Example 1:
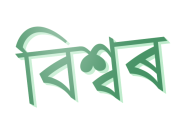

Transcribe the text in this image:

বিশ্বৰ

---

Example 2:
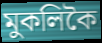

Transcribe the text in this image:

মুকলিকৈ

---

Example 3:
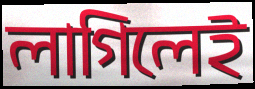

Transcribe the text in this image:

লাগিলেই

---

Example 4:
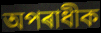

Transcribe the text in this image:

অপৰাধীক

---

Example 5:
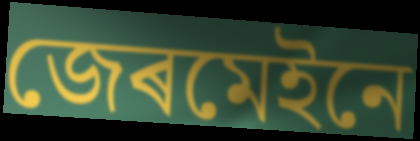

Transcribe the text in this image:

জেৰমেইনে